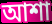
আশা